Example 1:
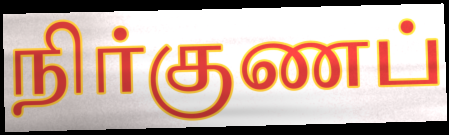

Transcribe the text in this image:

நிர்குணப்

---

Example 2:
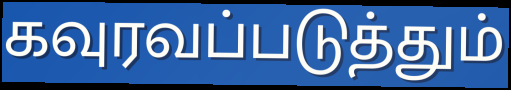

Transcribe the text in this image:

கவுரவப்படுத்தும்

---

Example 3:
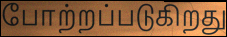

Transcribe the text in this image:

போற்றப்படுகிறது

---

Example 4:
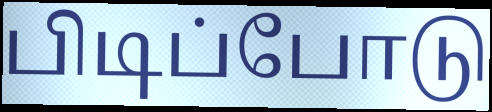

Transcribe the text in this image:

பிடிப்போடு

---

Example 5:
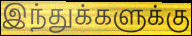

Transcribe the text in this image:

இந்துக்களுக்கு